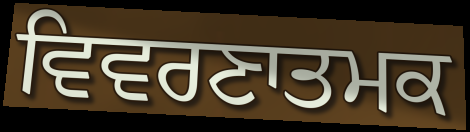
ਵਿਵਰਣਾਤਮਕ